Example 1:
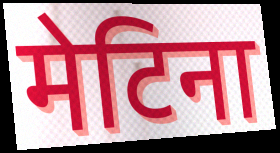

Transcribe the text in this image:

मेटिना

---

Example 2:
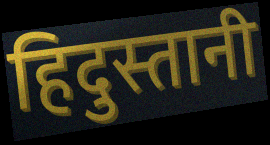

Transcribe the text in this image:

हिदुस्तानी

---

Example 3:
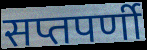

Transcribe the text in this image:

सप्तपर्णी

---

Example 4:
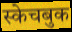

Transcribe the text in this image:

स्केचबुक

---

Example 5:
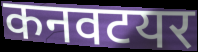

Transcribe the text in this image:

कनवटयर